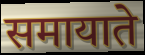
समायाते